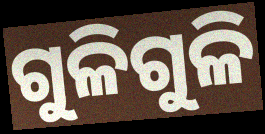
ଗୁଳିଗୁଳି